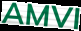
AMVI